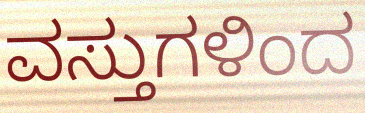
ವಸ್ತುಗಳಿಂದ